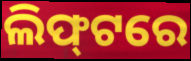
ଲିଫ୍‍ଟରେ